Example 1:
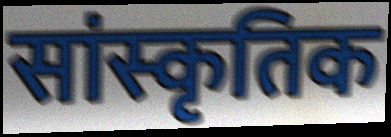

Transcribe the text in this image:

सांस्कृतिक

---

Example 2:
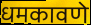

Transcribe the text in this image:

धमकावणे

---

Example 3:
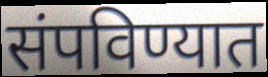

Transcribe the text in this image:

संपविण्यात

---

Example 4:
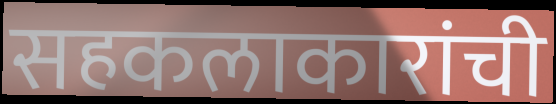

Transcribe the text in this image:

सहकलाकारांची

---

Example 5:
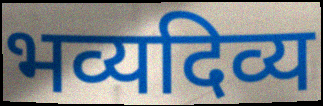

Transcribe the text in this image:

भव्यदिव्य